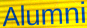
Alumni